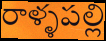
రాళ్ళపల్లి